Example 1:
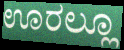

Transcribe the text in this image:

ಊರಲ್ಲೂ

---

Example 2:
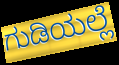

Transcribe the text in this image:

ಗುಡಿಯಲ್ಲೆ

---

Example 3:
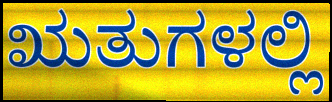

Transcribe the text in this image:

ಋತುಗಳಲ್ಲಿ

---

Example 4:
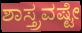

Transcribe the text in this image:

ಶಾಸ್ತ್ರವಷ್ಟೇ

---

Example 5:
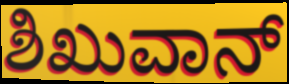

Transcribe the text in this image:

ಶಿಖುವಾನ್